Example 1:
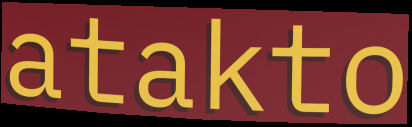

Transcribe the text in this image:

atakto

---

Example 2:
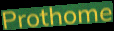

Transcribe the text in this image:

Prothome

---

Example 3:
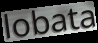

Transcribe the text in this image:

lobata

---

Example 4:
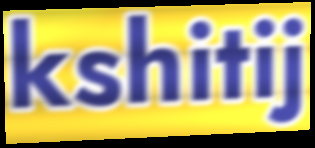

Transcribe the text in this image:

kshitij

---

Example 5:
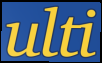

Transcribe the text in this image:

ulti